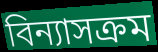
বিন্যাসক্রম